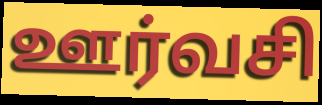
ஊர்வசி